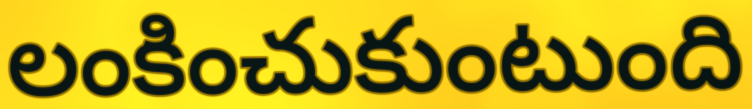
లంకించుకుంటుంది